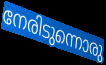
നേരിടുന്നൊരു